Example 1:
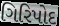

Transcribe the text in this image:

ગિરિપોદ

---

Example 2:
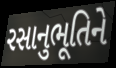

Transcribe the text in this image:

રસાનુભૂતિને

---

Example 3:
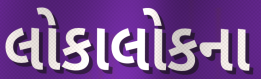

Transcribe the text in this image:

લોકાલોકના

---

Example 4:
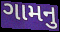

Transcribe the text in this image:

ગામનુ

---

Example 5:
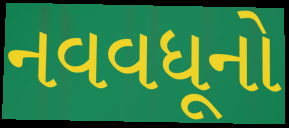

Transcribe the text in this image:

નવવધૂનો